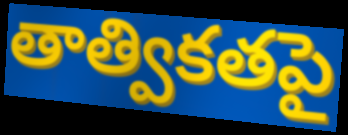
తాత్వికతపై